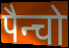
पैन्चो